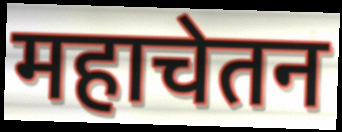
महाचेतन